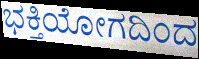
ಭಕ್ತಿಯೋಗದಿಂದ